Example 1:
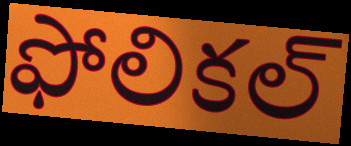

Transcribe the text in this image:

ఫోలికల్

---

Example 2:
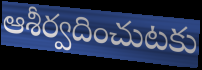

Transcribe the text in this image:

ఆశీర్వదించుటకు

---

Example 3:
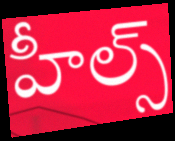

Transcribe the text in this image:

హీల్స్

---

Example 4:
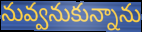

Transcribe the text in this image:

నువ్వనుకున్నాను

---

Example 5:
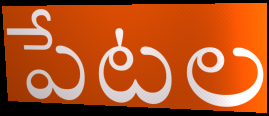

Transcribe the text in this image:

పేటల